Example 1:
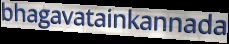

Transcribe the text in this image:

bhagavatainkannada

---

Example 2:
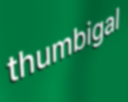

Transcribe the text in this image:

thumbigal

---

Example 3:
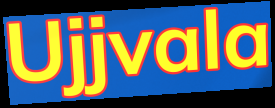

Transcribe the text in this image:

Ujjvala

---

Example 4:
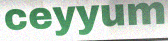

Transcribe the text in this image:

ceyyum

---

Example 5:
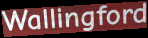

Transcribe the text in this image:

Wallingford